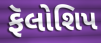
ફૅલોશિપ